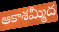
ఆకాశమ్మీద